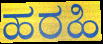
ಹರಹಿ